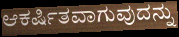
ಆಕರ್ಷಿತವಾಗುವುದನ್ನು